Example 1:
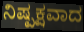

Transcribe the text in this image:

ನಿಷ್ಪಕ್ಷವಾದ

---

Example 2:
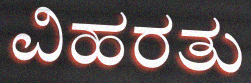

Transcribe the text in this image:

ವಿಹರತು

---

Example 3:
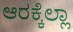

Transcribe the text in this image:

ಆರಕ್ಕೆಲ್ಲಾ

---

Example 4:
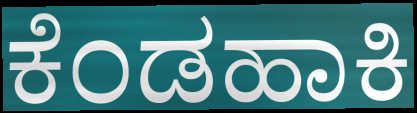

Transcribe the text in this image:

ಕೆಂಡಹಾಕಿ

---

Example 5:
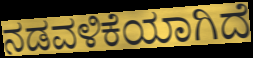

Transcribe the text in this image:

ನಡವಳಿಕೆಯಾಗಿದೆ